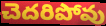
చెదరిపోవు